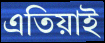
এতিয়াই